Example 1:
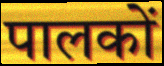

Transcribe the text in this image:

पालकों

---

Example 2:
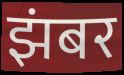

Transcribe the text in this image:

झंबर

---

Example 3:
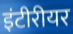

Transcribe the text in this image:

इंटीरीयर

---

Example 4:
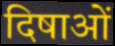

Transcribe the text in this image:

दिषाओं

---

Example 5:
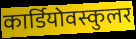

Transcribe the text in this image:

कार्डियोवस्कुलर